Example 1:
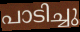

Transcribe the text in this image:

പാടിച്ചു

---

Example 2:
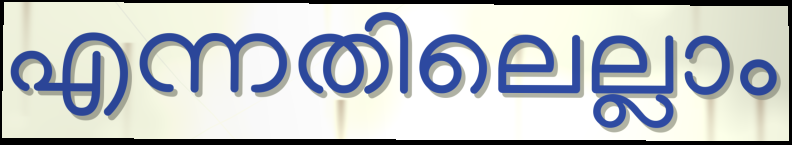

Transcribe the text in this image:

എന്നതിലെല്ലാം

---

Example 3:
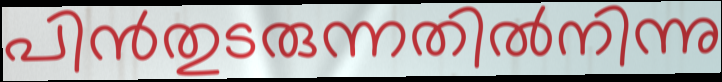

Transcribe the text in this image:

പിൻതുടരുന്നതിൽനിന്നു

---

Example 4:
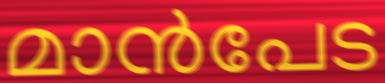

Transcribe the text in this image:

മാൻപേട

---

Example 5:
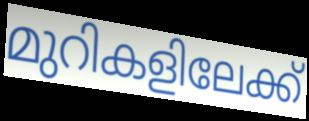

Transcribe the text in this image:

മുറികളിലേക്ക്